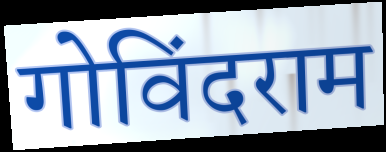
गोविंदराम